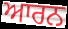
ਆਰਨ